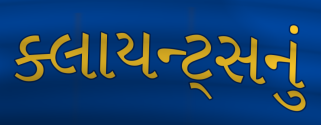
ક્લાયન્ટ્સનું